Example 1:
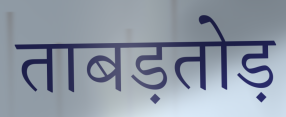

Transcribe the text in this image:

ताबड़तोड़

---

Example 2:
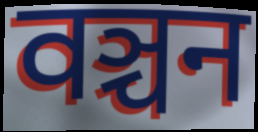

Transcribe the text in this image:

वञ्चन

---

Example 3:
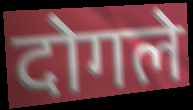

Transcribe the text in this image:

दोगले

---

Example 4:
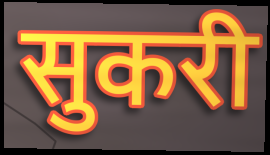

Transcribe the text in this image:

सुकरी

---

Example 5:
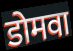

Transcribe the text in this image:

डोमवा